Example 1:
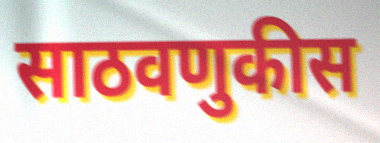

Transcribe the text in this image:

साठवणुकीस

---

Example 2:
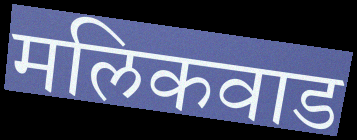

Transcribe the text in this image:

मलिकवाड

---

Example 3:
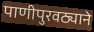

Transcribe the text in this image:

पाणीपुरवठ्याने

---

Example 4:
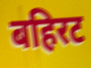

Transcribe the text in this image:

बहिरट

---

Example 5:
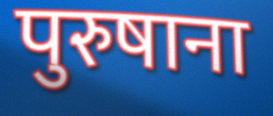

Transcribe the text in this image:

पुरुषाना